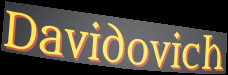
Davidovich